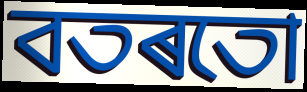
বতৰতো